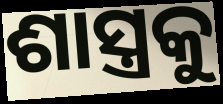
ଶାସ୍ତ୍ରକୁ